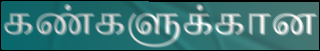
கண்களுக்கான